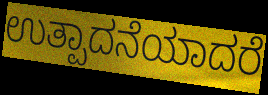
ಉತ್ಪಾದನೆಯಾದರೆ